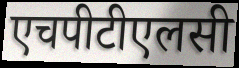
एचपीटीएलसी